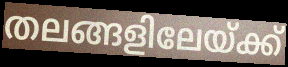
തലങ്ങളിലേയ്ക്ക്